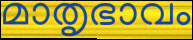
മാതൃഭാവം